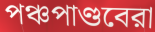
পঞ্চপাণ্ডবেরা